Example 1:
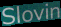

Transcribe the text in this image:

Slovin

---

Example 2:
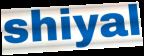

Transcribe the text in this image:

shiyal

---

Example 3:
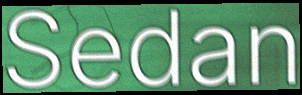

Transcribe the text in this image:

Sedan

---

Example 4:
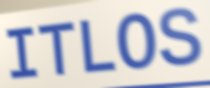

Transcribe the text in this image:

ITLOS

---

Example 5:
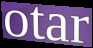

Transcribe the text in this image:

otar